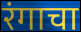
रंगाचा